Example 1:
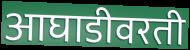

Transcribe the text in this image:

आघाडीवरती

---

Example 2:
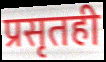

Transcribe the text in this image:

प्रसृतही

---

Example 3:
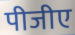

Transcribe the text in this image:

पीजीए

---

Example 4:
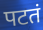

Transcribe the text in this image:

पटतं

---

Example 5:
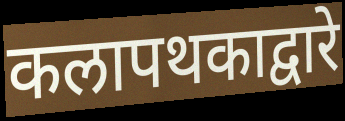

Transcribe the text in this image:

कलापथकाद्वारे